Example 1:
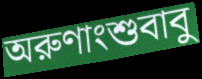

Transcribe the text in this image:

অরুণাংশুবাবু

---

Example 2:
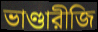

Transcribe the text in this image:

ভাণ্ডারীজি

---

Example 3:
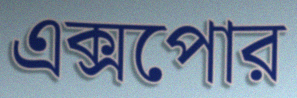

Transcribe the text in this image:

এক্সপোর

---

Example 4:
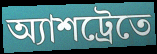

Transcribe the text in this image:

অ্যাশট্রেতে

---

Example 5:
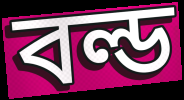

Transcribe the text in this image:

বল্ড